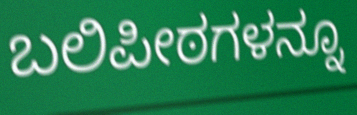
ಬಲಿಪೀಠಗಳನ್ನೂ